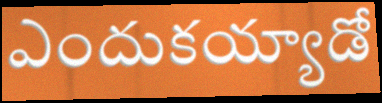
ఎందుకయ్యాడో